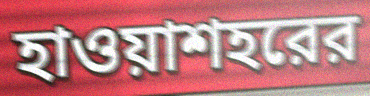
হাওয়াশহরের